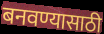
बनवण्‍यासाठी